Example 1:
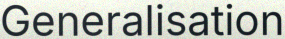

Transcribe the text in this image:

Generalisation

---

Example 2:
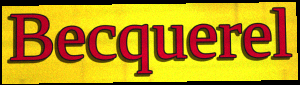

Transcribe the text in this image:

Becquerel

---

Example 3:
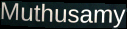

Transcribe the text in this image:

Muthusamy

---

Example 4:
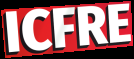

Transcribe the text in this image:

ICFRE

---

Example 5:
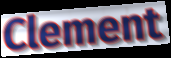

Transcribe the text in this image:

Clement